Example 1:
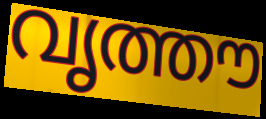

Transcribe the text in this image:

വൃത്തൗ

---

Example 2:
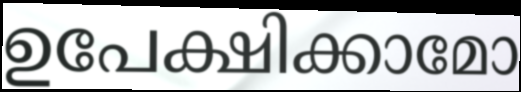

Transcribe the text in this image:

ഉപേക്ഷിക്കാമോ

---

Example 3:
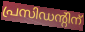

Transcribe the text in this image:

പ്രസിഡന്റിന്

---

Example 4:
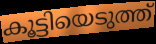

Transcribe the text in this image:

കൂട്ടിയെടുത്ത്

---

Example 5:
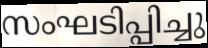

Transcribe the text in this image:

സംഘടിപ്പിച്ചു